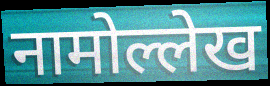
नामोल्लेख